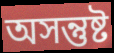
অসন্তুষ্ট